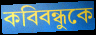
কবিবন্ধুকে